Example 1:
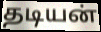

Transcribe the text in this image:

தடியன்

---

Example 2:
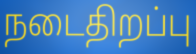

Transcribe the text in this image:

நடைதிறப்பு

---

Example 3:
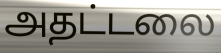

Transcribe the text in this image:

அதட்டலை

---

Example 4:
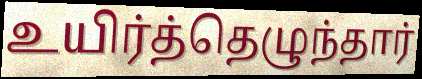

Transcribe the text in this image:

உயிர்த்தெழுந்தார்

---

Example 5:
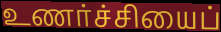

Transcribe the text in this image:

உணர்ச்சியைப்